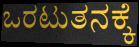
ಒರಟುತನಕ್ಕೆ